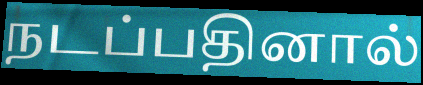
நடப்பதினால்